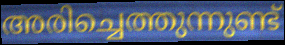
അരിച്ചെത്തുന്നുണ്ട്